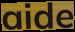
aide